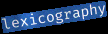
lexicography